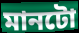
মানটো